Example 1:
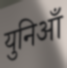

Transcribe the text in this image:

युनिआँ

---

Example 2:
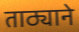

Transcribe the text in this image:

ताठ्याने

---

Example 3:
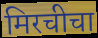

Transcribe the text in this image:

मिरचीचा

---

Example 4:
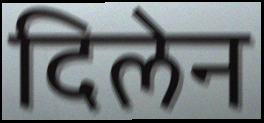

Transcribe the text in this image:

दिलेन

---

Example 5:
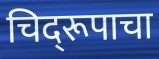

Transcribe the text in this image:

चिद्‌रूपाचा